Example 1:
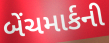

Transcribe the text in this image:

બેંચમાર્કની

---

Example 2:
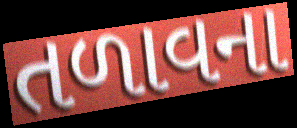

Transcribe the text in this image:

તળાવના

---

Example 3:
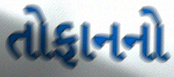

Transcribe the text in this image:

તોફાનનો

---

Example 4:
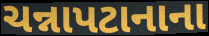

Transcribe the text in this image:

ચન્નાપટાનાના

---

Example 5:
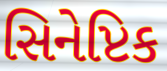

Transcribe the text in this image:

સિનેપ્ટિક